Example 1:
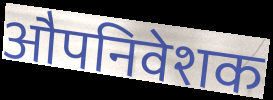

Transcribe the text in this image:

औपनिवेशक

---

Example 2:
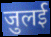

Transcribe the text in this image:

जुलई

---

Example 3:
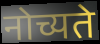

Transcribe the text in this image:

नोच्यते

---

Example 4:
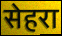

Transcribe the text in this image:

सेहरा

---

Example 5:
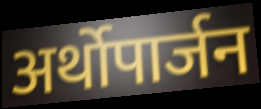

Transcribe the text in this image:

अर्थोपार्जन